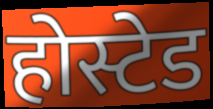
होस्टेड